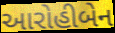
આરોહીબેન